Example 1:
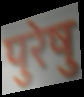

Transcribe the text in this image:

पुरेषु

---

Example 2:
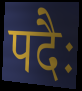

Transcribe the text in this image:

पदैः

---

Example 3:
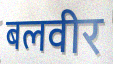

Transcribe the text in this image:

बलवीर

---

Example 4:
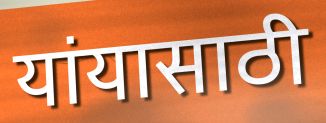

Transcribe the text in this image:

यांयासाठी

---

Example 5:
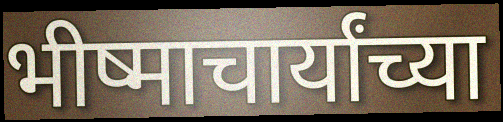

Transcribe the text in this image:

भीष्माचार्यांच्या